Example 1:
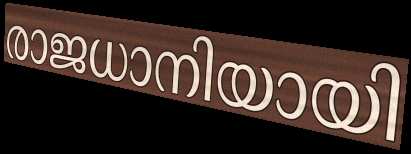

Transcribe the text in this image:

രാജധാനിയായി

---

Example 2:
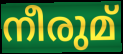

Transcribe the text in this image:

നീരുമ്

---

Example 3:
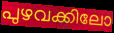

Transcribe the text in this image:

പുഴവക്കിലോ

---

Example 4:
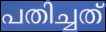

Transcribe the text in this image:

പതിച്ചത്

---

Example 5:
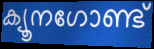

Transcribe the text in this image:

ക്യൂനഗോണ്ട്